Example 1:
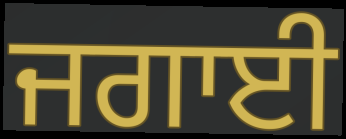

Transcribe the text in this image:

ਜਗਾਈ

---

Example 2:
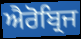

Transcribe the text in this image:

ਐਰੋਬ੍ਰਿਜ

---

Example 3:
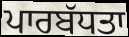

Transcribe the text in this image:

ਪਾਰਬੱਧਤਾ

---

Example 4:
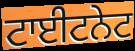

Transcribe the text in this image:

ਟਾਈਟਨੇਟ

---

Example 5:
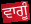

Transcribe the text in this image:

ਵਾਗੂੰ